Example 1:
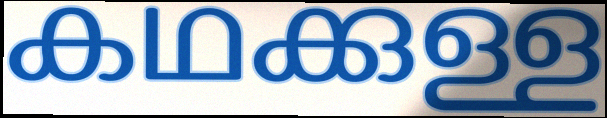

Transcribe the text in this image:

കഥക്കുള്ള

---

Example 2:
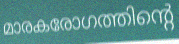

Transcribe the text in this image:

മാരകരോഗത്തിന്റെ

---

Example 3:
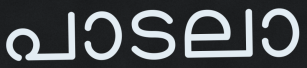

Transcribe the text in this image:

പാടലാ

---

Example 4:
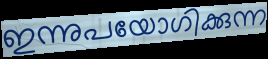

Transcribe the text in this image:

ഇന്നുപയോഗിക്കുന്ന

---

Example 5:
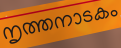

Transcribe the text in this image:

നൃത്തനാടകം